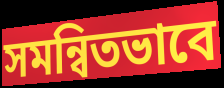
সমন্বিতভাবে